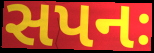
સપનઃ